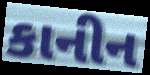
કાનીન